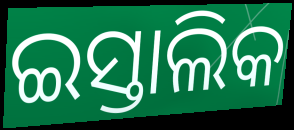
ଇସ୍ତାଲିକ